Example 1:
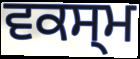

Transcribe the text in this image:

ਵਕਸ੍ਮ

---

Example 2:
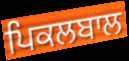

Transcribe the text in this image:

ਪਿਕਲਬਾਲ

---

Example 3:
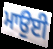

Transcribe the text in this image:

ਮਾਉਈ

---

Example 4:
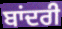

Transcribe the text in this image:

ਬਾਂਦਰੀ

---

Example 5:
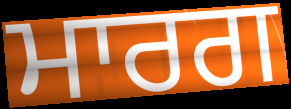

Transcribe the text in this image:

ਮਾਰਗ